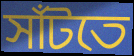
সাঁটতে